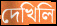
দেখিলি